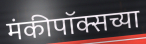
मंकीपॉक्सच्या